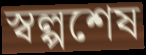
স্বল্পশেষ